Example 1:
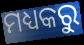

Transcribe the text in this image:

ମଧ୍ୟକରୁ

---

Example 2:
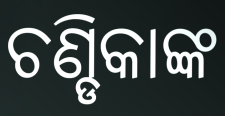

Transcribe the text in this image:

ଚଣ୍ଡିକାଙ୍କ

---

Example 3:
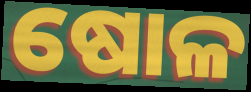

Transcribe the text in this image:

ଷୋଳ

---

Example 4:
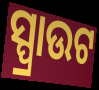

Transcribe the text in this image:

ସ୍ପ୍ରାଉଟ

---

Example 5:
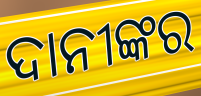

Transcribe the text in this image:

ଦାନୀଙ୍କର